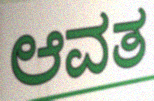
ಆವತ